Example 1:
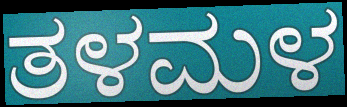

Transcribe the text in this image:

ತಳಮಳ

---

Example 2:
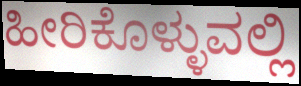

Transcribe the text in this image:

ಹೀರಿಕೊಳ್ಳುವಲ್ಲಿ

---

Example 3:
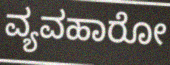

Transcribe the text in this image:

ವ್ಯವಹಾರೋ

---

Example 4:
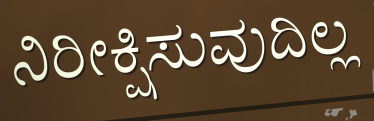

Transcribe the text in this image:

ನಿರೀಕ್ಷಿಸುವುದಿಲ್ಲ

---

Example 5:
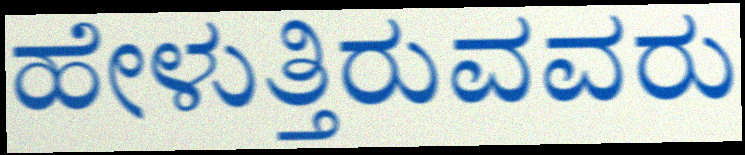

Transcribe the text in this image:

ಹೇಳುತ್ತಿರುವವರು